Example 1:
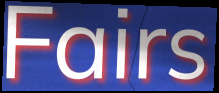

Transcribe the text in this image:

Fairs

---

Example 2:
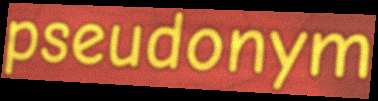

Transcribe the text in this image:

pseudonym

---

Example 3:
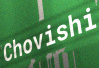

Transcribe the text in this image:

Chovishi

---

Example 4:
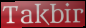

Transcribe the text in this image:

Takbir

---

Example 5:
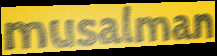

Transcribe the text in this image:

musalman